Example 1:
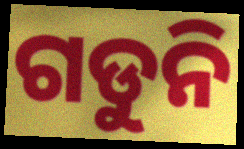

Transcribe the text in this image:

ଗଡୁନି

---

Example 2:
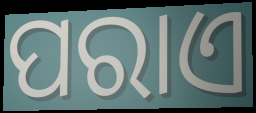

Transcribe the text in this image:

ପରାଏ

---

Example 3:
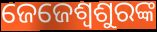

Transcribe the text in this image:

ଜେଜେଶ୍ୱଶୁରଙ୍କ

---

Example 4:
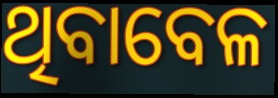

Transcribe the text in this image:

ଥିବାବେଳ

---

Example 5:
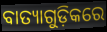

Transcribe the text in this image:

ବାତ୍ୟାଗୁଡ଼ିକରେ